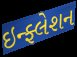
ઇન્ફ્લેશન